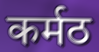
कर्मठ